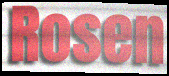
Rosen